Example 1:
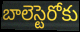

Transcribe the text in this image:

బాలెస్టెరోకు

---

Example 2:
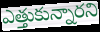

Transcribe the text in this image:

ఎత్తుకున్నారని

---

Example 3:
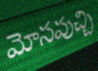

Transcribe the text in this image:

మోసపుచ్చి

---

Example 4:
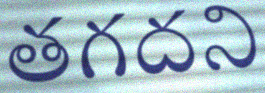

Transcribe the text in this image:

తగదని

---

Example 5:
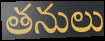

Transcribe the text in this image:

తనులు